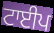
ਟਾਈਪ